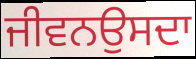
ਜੀਵਨਉਸਦਾ